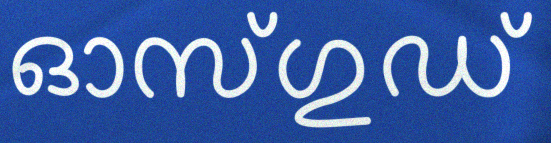
ഓസ്ഗുഡ്